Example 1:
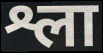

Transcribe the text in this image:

श्ला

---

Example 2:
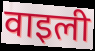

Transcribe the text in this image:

वाइली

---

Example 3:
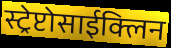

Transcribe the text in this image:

स्ट्रेप्टोसाईक्लिन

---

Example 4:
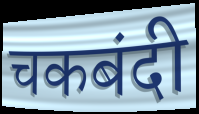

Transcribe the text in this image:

चकबंदी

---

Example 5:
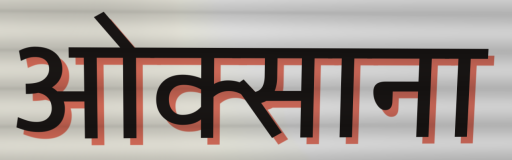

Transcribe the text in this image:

ओक्साना